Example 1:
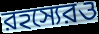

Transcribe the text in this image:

রহস্যেরও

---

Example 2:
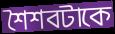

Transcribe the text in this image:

শৈশবটাকে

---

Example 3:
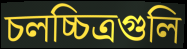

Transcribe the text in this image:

চলচ্চিত্রগুলি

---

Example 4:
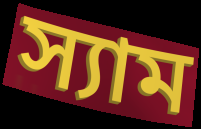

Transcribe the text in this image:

স্যাম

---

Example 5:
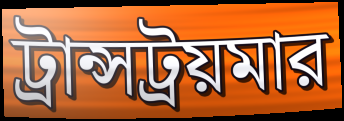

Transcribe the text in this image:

ট্রান্সট্রয়মার